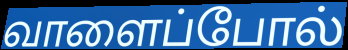
வாளைப்போல்